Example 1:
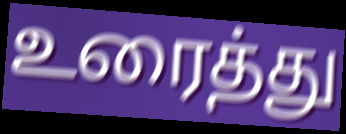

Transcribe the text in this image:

உரைத்து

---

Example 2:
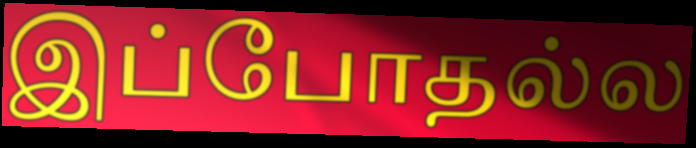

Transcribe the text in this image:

இப்போதல்ல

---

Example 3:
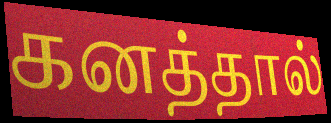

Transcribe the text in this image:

கனத்தால்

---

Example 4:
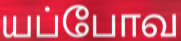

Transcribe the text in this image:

யப்போவ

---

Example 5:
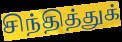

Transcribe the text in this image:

சிந்தித்துக்